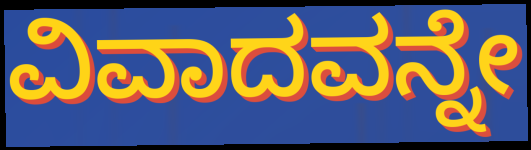
ವಿವಾದವನ್ನೇ